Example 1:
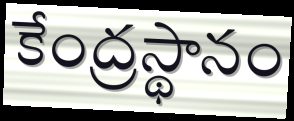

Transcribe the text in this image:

కేంద్రస్థానం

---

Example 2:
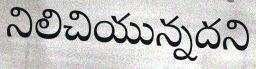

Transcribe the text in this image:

నిలిచియున్నదని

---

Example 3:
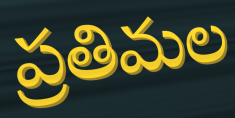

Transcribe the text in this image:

ప్రతిమల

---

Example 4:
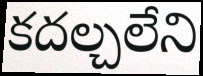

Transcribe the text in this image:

కదల్చలేని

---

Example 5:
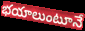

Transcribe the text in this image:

భయాలుంటూనే